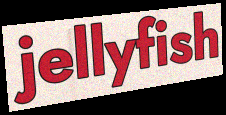
jellyfish